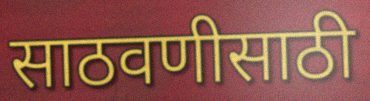
साठवणीसाठी